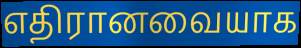
எதிரானவையாக